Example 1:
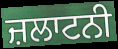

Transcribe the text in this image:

ਜ਼ਲਾਟਨੀ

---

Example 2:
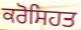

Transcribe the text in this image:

ਕਰੋਸਿਹਤ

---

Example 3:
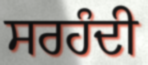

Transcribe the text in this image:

ਸਰਹੰਦੀ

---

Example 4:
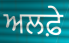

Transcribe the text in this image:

ਅਲਫ਼ੇ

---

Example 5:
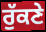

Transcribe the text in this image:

ਰੁੱਕਣੇ